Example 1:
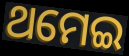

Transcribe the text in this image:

ଥମେଇ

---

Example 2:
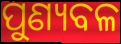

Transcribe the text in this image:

ପୁଣ୍ୟବଳ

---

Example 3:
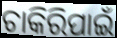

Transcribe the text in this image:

ଚାକିରିପାଇଁ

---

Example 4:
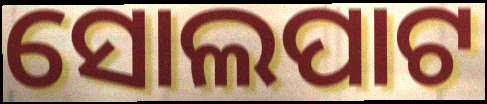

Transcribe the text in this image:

ସୋଲପାଟ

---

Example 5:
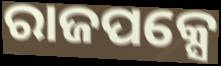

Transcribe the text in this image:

ରାଜପକ୍ସେ